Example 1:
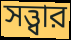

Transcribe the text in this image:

সত্ত্বার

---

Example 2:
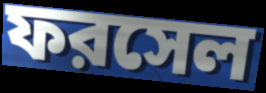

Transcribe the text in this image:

ফরসেল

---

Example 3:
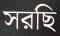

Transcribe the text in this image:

সরছি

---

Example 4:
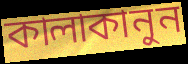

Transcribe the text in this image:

কালাকানুন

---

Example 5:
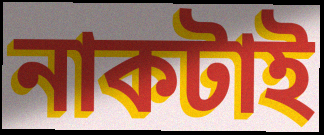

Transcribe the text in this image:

নাকটাই